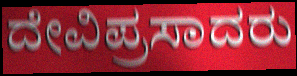
ದೇವಿಪ್ರಸಾದರು